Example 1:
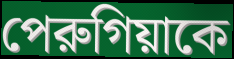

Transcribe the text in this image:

পেরুগিয়াকে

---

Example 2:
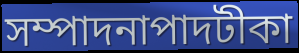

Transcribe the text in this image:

সম্পাদনাপাদটীকা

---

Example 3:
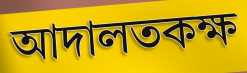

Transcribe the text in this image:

আদালতকক্ষ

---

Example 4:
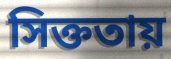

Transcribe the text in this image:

সিক্ততায়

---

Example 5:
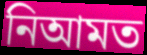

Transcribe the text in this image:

নিআমত